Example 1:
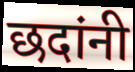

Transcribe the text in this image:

छदांनी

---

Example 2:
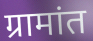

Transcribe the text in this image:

ग्रामांत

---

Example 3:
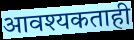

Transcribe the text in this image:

आवश्यकताही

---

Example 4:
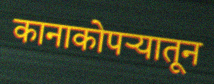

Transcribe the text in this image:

कानाकोपऱ्यातून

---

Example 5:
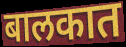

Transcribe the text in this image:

बालकात